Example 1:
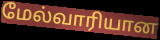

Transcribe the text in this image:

மேல்வாரியான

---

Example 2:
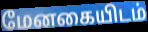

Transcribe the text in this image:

மேனகையிடம்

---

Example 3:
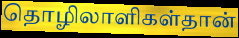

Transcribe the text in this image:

தொழிலாளிகள்தான்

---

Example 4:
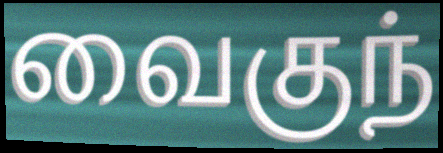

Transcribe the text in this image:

வைகுந்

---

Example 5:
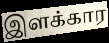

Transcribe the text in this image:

இளக்கார